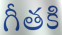
గీతకి